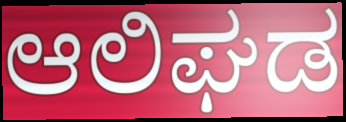
ಆಲಿಘಡ